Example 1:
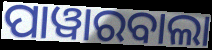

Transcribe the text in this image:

ପାୱାରବାଲା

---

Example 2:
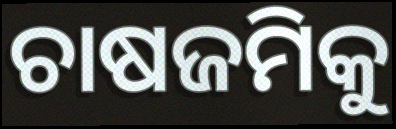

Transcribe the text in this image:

ଚାଷଜମିକୁ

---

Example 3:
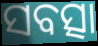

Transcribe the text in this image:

ସବତ୍ସା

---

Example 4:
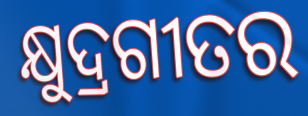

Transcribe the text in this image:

କ୍ଷୁଦ୍ରଗୀତର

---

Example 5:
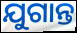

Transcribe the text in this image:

ଯୁଗାନ୍ତ